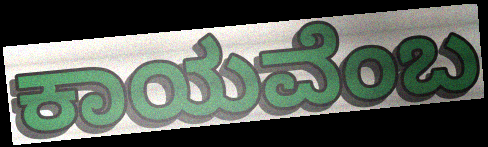
ಕಾಯವೆಂಬ